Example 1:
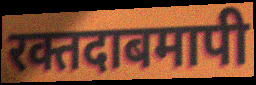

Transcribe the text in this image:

रक्तदाबमापी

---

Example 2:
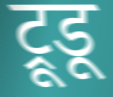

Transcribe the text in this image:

ट्रूडू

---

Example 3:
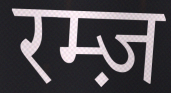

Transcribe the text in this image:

रम्ज़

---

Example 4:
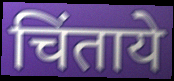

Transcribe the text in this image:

चिंताये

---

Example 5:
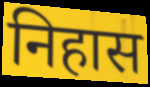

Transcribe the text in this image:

निहास